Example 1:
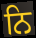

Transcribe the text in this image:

ਨਿ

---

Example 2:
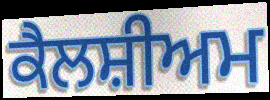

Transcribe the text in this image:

ਕੈਲਸ਼ੀਅਮ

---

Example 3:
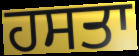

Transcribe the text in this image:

ਹਸਤਾ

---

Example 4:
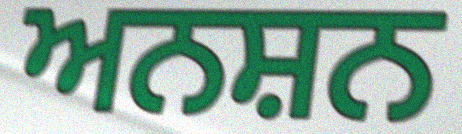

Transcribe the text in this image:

ਅਨਸ਼ਨ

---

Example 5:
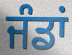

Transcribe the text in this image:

ਜੰਡਾਂ